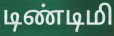
டிண்டிமி